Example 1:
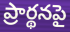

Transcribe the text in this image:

ప్రార్థనపై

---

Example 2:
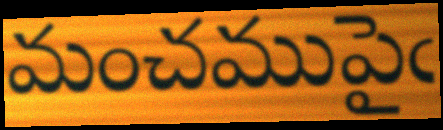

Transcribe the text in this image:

మంచముపైఁ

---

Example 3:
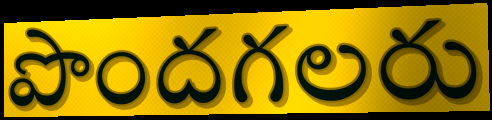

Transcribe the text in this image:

పొందగలరు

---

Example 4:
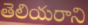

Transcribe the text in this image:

తెలియరాని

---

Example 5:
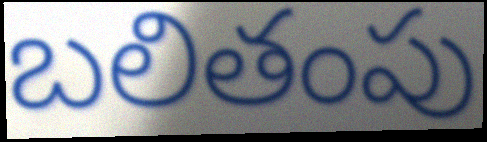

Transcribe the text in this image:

బలితంపు